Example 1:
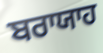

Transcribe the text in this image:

ਬਰਾਯਾਹ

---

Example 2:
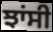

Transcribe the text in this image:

ਝਾਂਸੀ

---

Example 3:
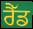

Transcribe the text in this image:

ਰੈੱਡ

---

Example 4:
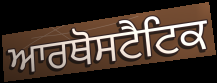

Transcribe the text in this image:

ਆਰਥੋਸਟੈਟਿਕ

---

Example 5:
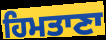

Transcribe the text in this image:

ਹਿਮਤਾਣਾ